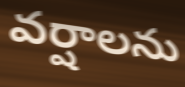
వర్షాలను